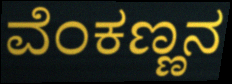
ವೆಂಕಣ್ಣನ